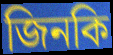
জিনকি